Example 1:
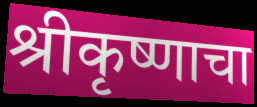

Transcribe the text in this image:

श्रीकृष्णाचा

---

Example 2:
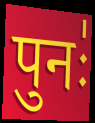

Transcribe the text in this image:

पुनः॑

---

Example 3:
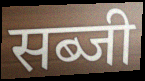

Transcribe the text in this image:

सब्जी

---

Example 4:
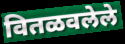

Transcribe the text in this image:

वितळवलेले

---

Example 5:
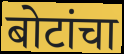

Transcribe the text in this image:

बोटांचा